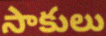
సాకులు